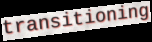
transitioning